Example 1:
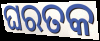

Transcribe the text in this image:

ଘରତକ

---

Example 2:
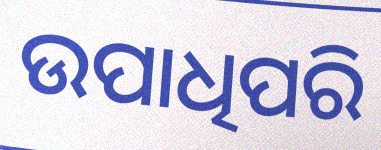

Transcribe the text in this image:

ଉପାଧିପରି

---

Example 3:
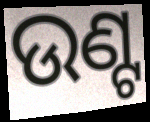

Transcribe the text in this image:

ଉଣ୍ଟ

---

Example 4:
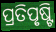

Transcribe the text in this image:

ପ୍ରତିପୃଷ୍ଟି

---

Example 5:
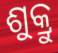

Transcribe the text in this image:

ଶୁକ୍ରୁ